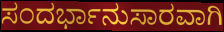
ಸಂದರ್ಭಾನುಸಾರವಾಗಿ